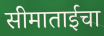
सीमाताईचा